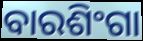
ବାରଶିଂଗା